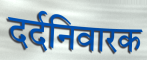
दर्दनिवारक